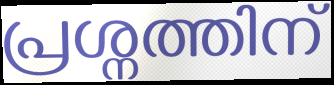
പ്രശ്നത്തിന്